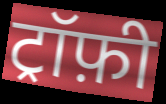
ट्रॉफ़ी